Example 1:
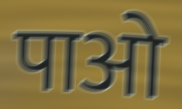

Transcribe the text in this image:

पाओ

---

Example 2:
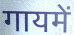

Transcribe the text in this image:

गायमें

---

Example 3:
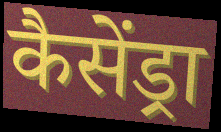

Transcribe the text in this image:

कैसेंड्रा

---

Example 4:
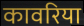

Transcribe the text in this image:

कावरिया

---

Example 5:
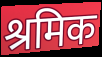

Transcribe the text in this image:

श्रमिक